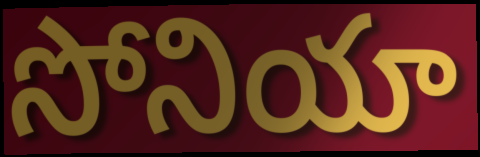
సోనియా